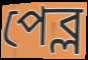
পেব্ল